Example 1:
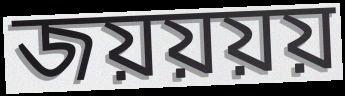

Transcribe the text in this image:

জয়য়য়য়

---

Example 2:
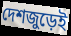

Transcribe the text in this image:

দেশজুড়েই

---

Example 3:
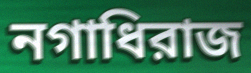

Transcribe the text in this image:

নগাধিরাজ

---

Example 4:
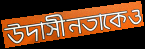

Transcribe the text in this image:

উদাসীনতাকেও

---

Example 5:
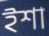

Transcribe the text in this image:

ইশা